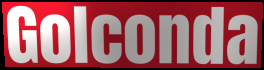
Golconda